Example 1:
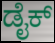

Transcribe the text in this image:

ಡೈಕ್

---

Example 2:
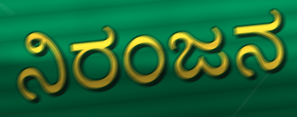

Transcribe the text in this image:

ನಿರಂಜನ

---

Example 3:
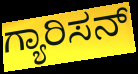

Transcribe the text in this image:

ಗ್ಯಾರಿಸನ್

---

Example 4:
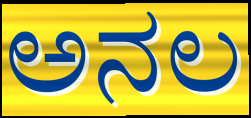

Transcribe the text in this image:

ಅನಲ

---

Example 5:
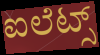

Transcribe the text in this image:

ಐಲೆಟ್ಸ್